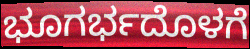
ಭೂಗರ್ಭದೊಳಗೆ